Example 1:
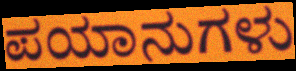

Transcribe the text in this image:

ಪಯಾನುಗಳು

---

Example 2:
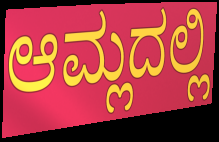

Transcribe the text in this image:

ಆಮ್ಲದಲ್ಲಿ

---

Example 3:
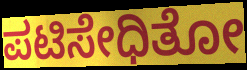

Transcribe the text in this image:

ಪಟಿಸೇಧಿತೋ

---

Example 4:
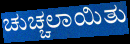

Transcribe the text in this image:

ಚುಚ್ಚಲಾಯಿತು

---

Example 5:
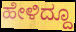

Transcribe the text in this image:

ಹೇಳಿದ್ದೂ